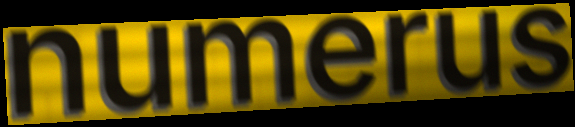
numerus